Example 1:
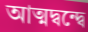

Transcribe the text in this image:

আত্মদ্বন্দ্বে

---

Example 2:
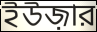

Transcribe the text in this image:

ইউজ়ার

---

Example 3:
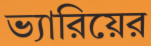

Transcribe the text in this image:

ভ্যারিয়ের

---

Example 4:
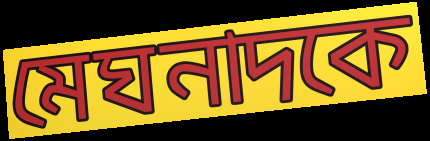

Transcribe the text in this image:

মেঘনাদকে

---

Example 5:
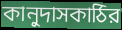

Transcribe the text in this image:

কানুদাসকাঠির